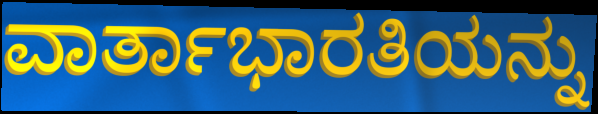
ವಾರ್ತಾಭಾರತಿಯನ್ನು